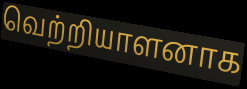
வெற்றியாளனாக